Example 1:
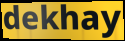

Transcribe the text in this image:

dekhay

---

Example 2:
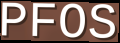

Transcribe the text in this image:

PFOS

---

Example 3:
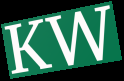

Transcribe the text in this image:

KW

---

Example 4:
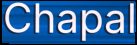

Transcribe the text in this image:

Chapal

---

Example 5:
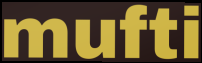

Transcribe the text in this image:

mufti